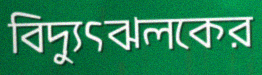
বিদ্যুৎঝলকের